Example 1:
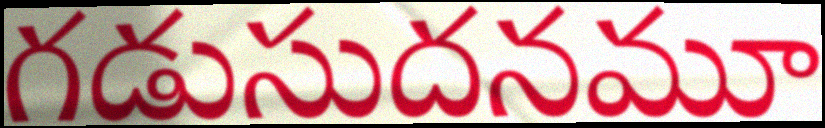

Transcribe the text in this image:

గడుసుదనమూ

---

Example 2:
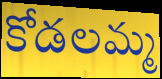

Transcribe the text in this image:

కోడలమ్మ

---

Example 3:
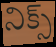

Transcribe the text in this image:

నిక్స్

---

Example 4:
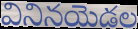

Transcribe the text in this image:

వినినయెడల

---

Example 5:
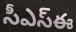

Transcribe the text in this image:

సీఎస్ఈ